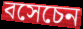
বসেচেন